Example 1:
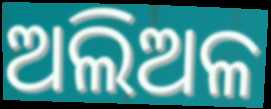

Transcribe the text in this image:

ଅଲିଅଳ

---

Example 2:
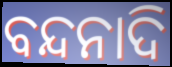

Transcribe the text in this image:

ବନ୍ଦନାଦି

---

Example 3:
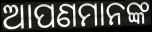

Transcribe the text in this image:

ଆପଣମାନଙ୍କ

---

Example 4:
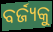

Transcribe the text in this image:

ବର୍ଜ୍ୟକୁ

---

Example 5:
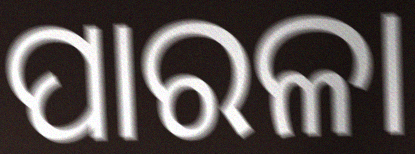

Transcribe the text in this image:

ପାରଳା